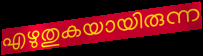
എഴുതുകയായിരുന്ന